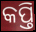
କପ୍ତି